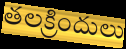
తలక్రిందులు